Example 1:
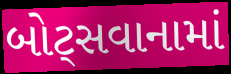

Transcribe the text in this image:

બોટ્સવાનામાં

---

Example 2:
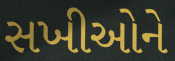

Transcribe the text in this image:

સખીઓને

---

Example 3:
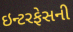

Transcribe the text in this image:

ઇન્ટરફેસની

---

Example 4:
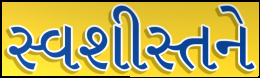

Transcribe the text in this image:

સ્વશીસ્તને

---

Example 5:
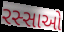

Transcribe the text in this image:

રસ્સાઓ